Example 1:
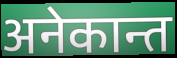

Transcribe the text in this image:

अनेकान्त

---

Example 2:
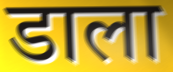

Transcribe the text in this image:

डाला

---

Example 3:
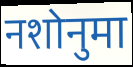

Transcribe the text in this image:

नशोनुमा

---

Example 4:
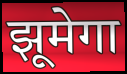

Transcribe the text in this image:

झूमेगा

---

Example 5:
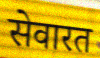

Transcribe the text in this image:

सेवारत